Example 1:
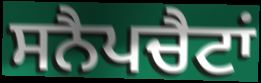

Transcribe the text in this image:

ਸਨੈਪਚੈਟਾਂ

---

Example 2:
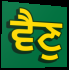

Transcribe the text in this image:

ਵੈਣੁ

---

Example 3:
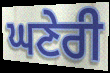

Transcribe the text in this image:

ਘਣੇਰੀ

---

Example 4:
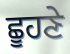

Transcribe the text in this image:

ਛੂਹਣੇ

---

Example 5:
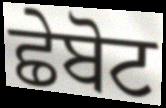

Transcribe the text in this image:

ਛੇਬੋਟ